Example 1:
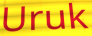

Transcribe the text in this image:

Uruk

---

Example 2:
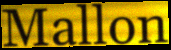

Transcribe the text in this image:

Mallon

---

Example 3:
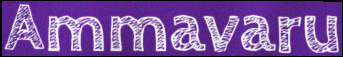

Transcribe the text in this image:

Ammavaru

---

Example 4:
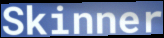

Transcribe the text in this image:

Skinner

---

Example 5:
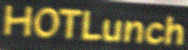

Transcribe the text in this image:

HOTLunch